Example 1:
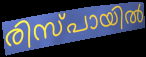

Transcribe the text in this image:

രിസ്പായിൽ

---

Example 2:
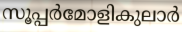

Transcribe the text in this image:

സൂപ്പർമോളികുലാർ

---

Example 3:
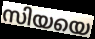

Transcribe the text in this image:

സിയയെ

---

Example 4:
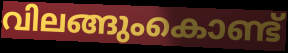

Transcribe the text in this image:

വിലങ്ങുംകൊണ്ട്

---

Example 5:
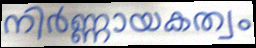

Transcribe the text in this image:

നിർണ്ണായകത്വം